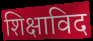
शिक्षाविद